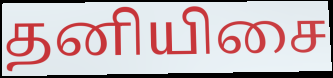
தனியிசை